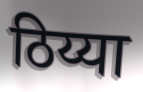
ठिय्या